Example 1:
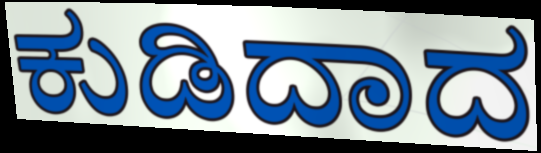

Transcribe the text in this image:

ಕುಡಿದಾದ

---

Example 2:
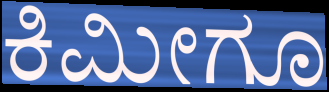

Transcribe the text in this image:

ಕಿಮೀಗೂ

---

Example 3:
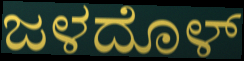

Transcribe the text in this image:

ಜಳದೊಳ್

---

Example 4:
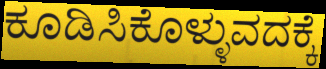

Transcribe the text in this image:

ಕೂಡಿಸಿಕೊಳ್ಳುವದಕ್ಕೆ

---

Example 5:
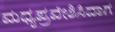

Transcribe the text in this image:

ಮಧ್ಯಪ್ರವೇಶಿಸಿದಾಗ